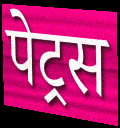
पेट्रस